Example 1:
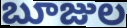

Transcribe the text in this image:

బూజుల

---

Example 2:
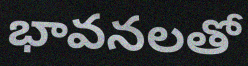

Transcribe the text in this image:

భావనలతో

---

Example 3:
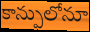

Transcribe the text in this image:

కాన్పులోనూ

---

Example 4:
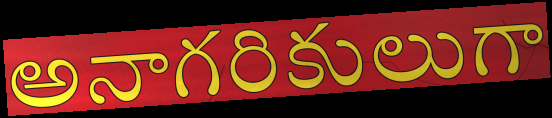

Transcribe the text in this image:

అనాగరికులుగా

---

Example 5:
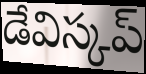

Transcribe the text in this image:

డేవిస్కప్